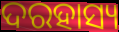
ଦରହାସ୍ୟ